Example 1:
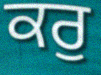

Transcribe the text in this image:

ਕਰੁ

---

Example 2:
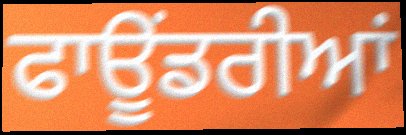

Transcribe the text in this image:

ਫਾਊਂਡਰੀਆਂ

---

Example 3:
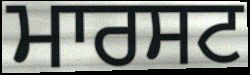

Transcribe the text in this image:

ਮਾਰਸਟ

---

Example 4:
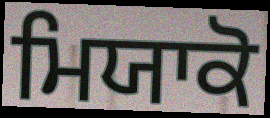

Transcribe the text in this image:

ਮਿਯਾਕੋ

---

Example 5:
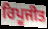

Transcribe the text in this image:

ਰਿਪੂਜੀਤ